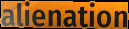
alienation